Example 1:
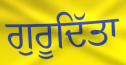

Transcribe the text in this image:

ਗੁਰੂਦਿੱਤਾ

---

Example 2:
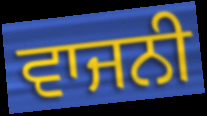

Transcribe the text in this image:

ਵਾਜਨੀ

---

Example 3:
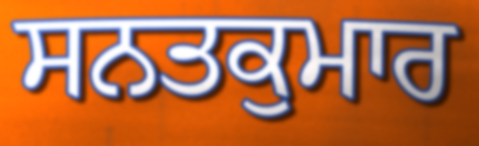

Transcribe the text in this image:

ਸਨਤਕੁਮਾਰ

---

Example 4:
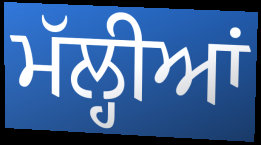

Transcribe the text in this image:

ਮੱਲ੍ਹੀਆਂ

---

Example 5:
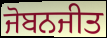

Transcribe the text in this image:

ਜੋਬਨਜੀਤ